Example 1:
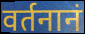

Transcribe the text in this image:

वर्तनानं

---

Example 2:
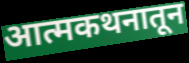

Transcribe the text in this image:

आत्मकथनातून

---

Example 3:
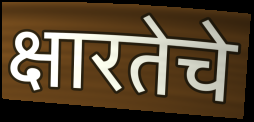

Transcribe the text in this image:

क्षारतेचे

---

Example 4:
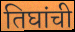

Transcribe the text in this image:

तिघांची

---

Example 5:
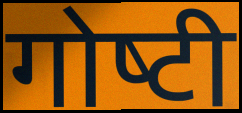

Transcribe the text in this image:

गोष्‍टी